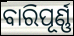
ବାରିପୂର୍ଣ୍ଣ